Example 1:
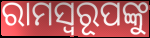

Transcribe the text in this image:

ରାମସ୍ୱରୂପଙ୍କୁ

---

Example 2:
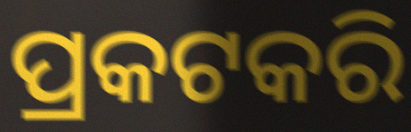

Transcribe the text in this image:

ପ୍ରକଟକରି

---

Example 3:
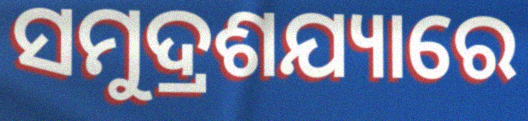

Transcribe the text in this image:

ସମୁଦ୍ରଶଯ୍ୟାରେ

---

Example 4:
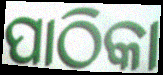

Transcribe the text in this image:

ପାଠିକା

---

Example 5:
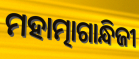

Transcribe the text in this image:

ମହାତ୍ମାଗାନ୍ଧିଜୀ